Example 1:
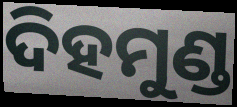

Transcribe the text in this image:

ଦିହମୁଣ୍ଡ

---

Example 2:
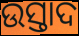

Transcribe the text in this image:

ଉସ୍ତାଦ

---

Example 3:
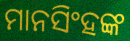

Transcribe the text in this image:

ମାନସିଂହଙ୍କ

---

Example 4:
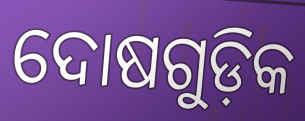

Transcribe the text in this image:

ଦୋଷଗୁଡ଼ିକ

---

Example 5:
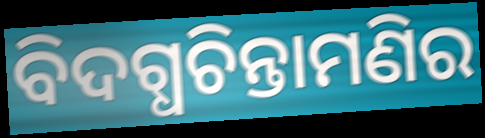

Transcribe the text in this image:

ବିଦଗ୍ଧଚିନ୍ତାମଣିର